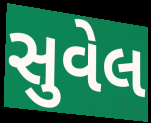
સુવેલ